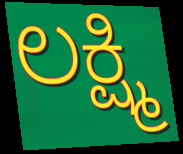
ಲಕ್ಷ್ಮಿ